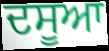
ਦਸੂਆ